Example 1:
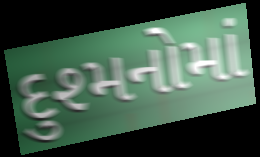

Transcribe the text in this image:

દુશ્મનોમાં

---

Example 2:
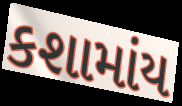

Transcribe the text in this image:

કશામાંય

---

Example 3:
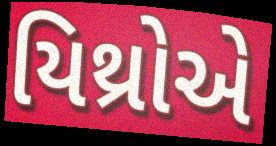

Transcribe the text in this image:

યિથ્રોએ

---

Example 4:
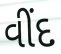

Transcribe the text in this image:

વીંદ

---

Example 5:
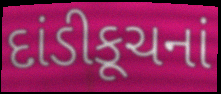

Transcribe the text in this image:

દાંડીકૂચનાં